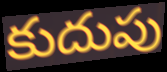
కుదుపు